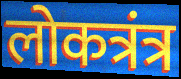
लोकत्रंत्र